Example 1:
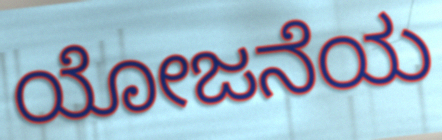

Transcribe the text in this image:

ಯೋಜನೆಯ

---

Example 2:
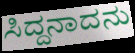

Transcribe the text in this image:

ಸಿದ್ದನಾದನು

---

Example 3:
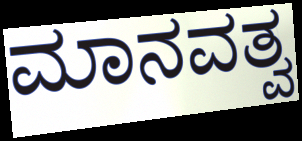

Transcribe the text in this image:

ಮಾನವತ್ವ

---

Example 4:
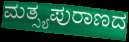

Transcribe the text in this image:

ಮತ್ಸ್ಯಪುರಾಣದ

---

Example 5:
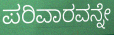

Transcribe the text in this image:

ಪರಿವಾರವನ್ನೇ